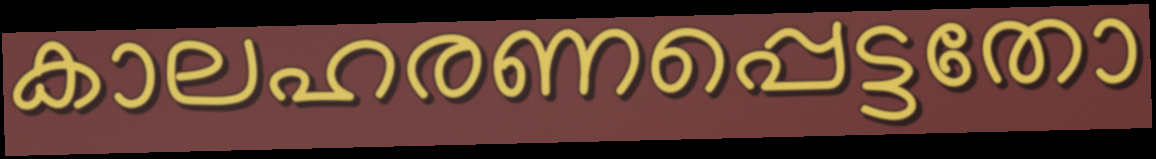
കാലഹരണപ്പെട്ടതോ